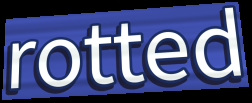
rotted